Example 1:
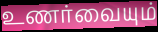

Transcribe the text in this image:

உணர்வையும்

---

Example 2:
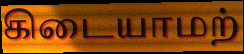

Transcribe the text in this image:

கிடையாமற்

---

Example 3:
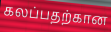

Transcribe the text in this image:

கலப்பதற்கான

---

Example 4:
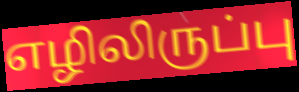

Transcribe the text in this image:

எழிலிருப்பு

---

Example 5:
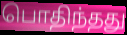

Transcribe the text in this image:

பொதிந்தது